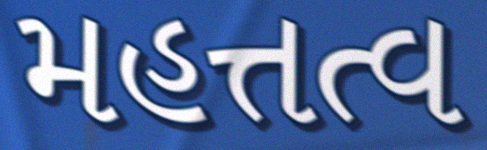
મહત્તત્વ